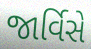
જાર્વિસે